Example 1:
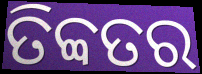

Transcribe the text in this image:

ତିବ୍ବତର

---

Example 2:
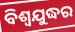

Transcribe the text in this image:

ବିଶ୍ୱଯୁଦ୍ଧର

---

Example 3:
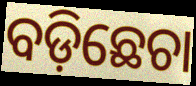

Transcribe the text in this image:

ବଡ଼ିଛେଚା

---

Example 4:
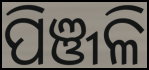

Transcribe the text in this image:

ପିଞ୍ଜଳି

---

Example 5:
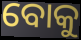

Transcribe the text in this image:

ବୋକୁ